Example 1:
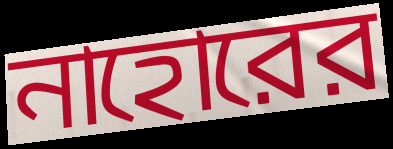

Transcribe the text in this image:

নাহোরের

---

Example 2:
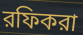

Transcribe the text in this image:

রফিকরা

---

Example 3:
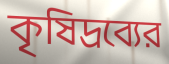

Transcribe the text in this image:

কৃষিদ্রব্যের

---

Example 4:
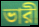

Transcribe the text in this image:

ভারী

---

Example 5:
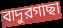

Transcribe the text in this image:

বাদুরগাছা